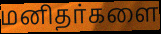
மனிதர்களை